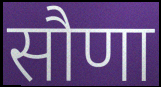
सौणा